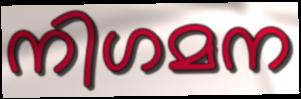
നിഗമന